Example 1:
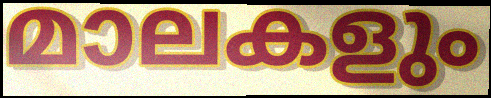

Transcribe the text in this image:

മാലകളും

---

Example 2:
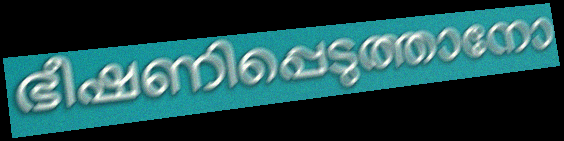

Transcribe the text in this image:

ഭീഷണിപ്പെടുത്താനോ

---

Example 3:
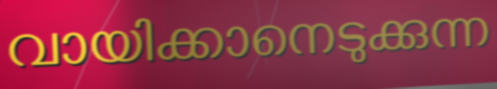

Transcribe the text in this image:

വായിക്കാനെടുക്കുന്ന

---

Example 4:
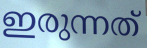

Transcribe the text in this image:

ഇരുന്നത്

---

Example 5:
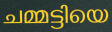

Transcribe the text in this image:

ചമ്മട്ടിയെ